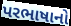
પરભાષાનો